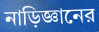
নাড়িজ্ঞানের